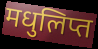
मधुलिप्त